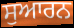
ਸੁਆਰਨ